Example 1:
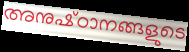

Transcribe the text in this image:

അനുഷ്‌ഠാനങ്ങളുടെ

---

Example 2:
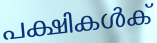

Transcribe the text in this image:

പക്ഷികൾക്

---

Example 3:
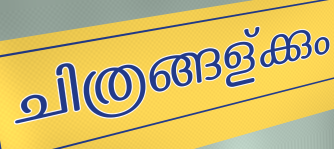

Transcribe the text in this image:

ചിത്രങ്ങള്ക്കും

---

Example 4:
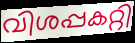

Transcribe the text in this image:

വിശപ്പകറ്റി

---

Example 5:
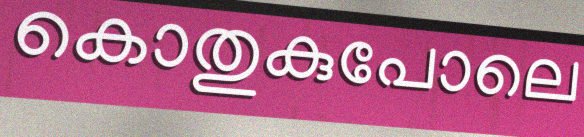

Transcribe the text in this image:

കൊതുകുപോലെ